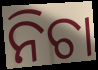
ନିଚା